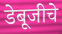
डेबूजीचे